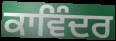
ਕਾਵਿੰਦਰ